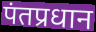
पंतप्रधान